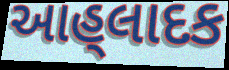
આહ્‌લાદક